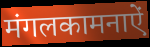
मंगलकामनाऐं